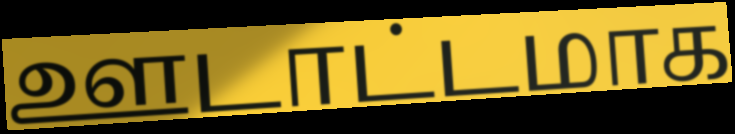
ஊடாட்டமாக